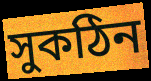
সুকঠিন